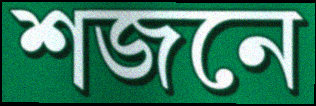
শজনে